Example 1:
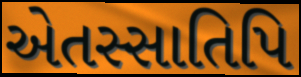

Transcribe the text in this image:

એતસ્સાતિપિ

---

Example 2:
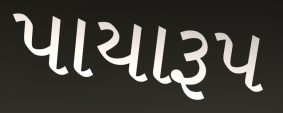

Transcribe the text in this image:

પાયારૂપ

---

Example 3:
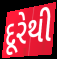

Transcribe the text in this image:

દૂરેથી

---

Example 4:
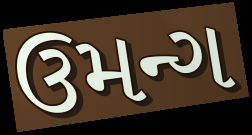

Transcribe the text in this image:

ઉમન્ગ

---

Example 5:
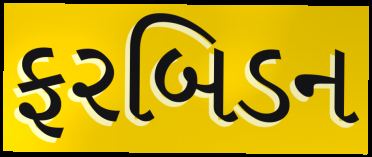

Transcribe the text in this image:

ફરબિડન